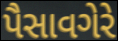
પૈસાવગેરે